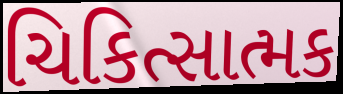
ચિકિત્સાત્મક